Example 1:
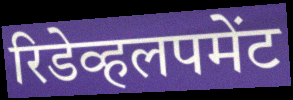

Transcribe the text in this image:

रिडेव्हलपमेंट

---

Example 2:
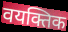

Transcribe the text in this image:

वयक्तिक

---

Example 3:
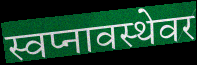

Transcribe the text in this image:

स्वप्नावस्थेवर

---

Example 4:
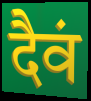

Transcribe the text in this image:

दैवं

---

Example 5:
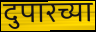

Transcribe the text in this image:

दुपारच्या